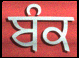
ਬੰਕ